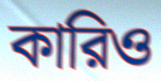
কারিও